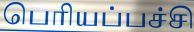
பெரியப்பச்சி